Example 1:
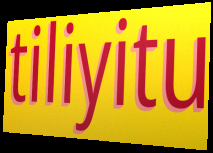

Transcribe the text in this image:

tiliyitu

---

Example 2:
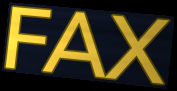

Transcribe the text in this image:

FAX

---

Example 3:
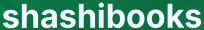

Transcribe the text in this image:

shashibooks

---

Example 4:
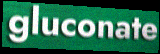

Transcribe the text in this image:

gluconate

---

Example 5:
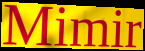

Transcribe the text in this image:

Mimir